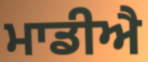
ਮਾਡੀਐ